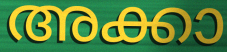
അക്കാ